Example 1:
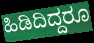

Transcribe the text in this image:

ಹಿಡಿದಿದ್ದರೂ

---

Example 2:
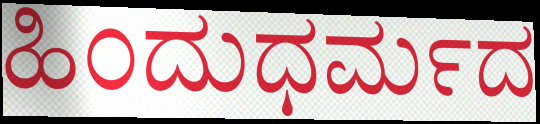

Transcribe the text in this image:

ಹಿಂದುಧರ್ಮದ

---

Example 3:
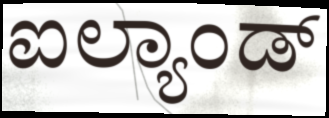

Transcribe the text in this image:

ಐಲ್ಯಾಂಡ್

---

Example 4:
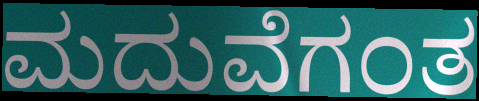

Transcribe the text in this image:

ಮದುವೆಗಂತ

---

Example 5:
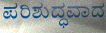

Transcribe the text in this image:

ಪರಿಶುದ್ಧವಾದ